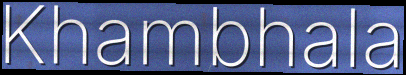
Khambhala